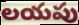
లయపు